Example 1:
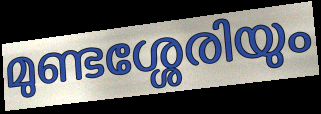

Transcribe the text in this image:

മുണ്ടശ്ശേരിയും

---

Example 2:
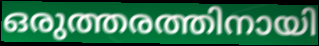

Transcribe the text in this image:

ഒരുത്തരത്തിനായി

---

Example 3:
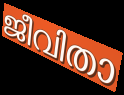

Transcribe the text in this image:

ജീവിതാ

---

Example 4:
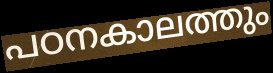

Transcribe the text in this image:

പഠനകാലത്തും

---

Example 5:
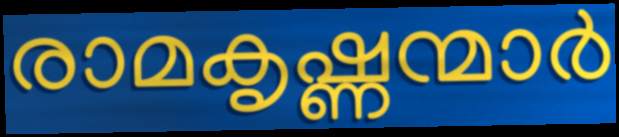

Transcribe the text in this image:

രാമകൃഷ്ണന്മാർ